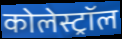
कोलेस्ट्रॉल